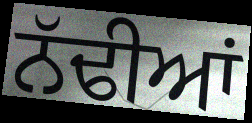
ਨੱਢੀਆਂ